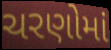
ચરણોમાં